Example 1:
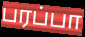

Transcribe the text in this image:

பரப்பா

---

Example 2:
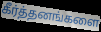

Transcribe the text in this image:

கீர்த்தனங்களை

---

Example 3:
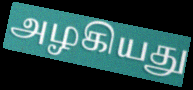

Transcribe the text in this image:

அழகியது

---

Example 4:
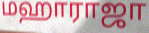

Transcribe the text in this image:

மஹாராஜா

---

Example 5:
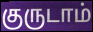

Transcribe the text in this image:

குருடாம்